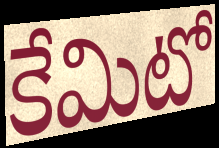
కేమిటో